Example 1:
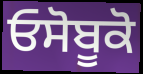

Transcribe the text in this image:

ਓਸੋਬੂਕੋ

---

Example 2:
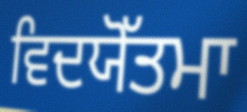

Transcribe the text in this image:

ਵਿਦਯੋੱਤਮਾ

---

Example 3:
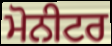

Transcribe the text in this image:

ਮੋਨੀਟਰ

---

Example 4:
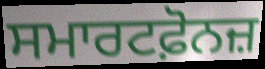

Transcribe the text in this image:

ਸਮਾਰਟਫ਼ੋਨਜ਼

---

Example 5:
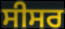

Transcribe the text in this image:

ਸੀਸਰ